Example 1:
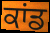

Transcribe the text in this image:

ਕਾਂਡ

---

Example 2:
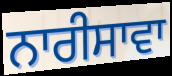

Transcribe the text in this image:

ਨਾਰੀਸਾਵਾ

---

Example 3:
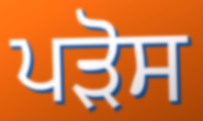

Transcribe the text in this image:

ਪੜੋਸ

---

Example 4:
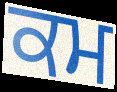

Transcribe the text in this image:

ਕਮ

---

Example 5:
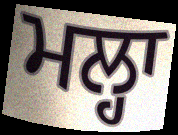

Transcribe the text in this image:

ਮਲ੍ਹਾ